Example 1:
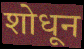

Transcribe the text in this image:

शोधून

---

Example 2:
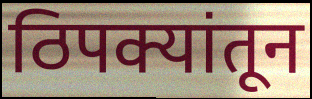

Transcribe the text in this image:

ठिपक्यांतून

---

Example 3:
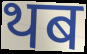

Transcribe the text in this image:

थब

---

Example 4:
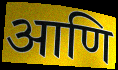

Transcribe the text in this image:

आणि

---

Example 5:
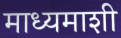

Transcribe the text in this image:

माध्यमाशी